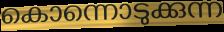
കൊന്നൊടുക്കുന്ന